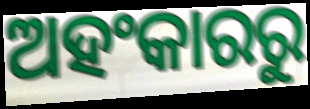
ଅହଂକାରରୁ